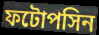
ফটোপসিন